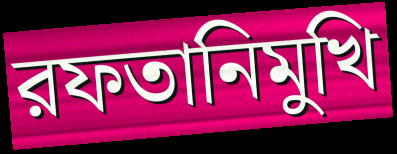
রফতানিমুখি